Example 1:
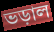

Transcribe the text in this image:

ভড়াল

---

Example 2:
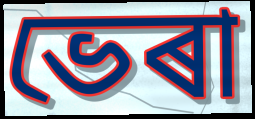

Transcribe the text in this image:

ভেৰা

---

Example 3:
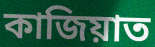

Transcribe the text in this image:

কাজিয়াত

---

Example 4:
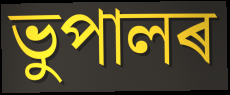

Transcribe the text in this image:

ভুপালৰ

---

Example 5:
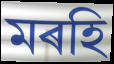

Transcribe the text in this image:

মৰহি